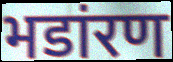
भडांरण